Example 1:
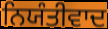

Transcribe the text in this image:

ਨਿਯੰਤੀਵਾਦ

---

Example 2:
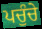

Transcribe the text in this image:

ਪਚੁੰਚੇ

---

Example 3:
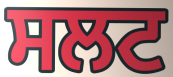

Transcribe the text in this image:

ਸਲਟ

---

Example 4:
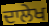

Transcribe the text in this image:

ਦਾਲੇਖ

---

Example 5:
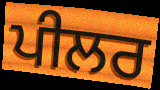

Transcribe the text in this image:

ਪੀਲਰ